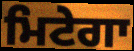
ਮਿਟੇਗਾ